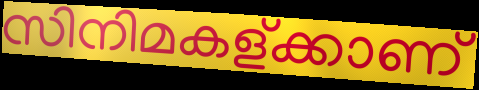
സിനിമകള്ക്കാണ്